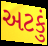
અટકું